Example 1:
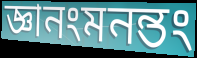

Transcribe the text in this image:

জ্ঞানংমনন্তং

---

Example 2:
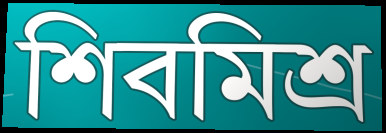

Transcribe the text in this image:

শিবমিশ্র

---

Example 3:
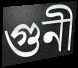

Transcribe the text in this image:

গুনী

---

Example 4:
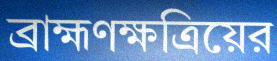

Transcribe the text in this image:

ব্রাহ্মণক্ষত্রিয়ের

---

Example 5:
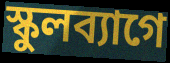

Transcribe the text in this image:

স্কুলব্যাগে